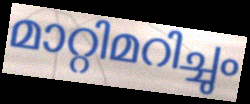
മാറ്റിമറിച്ചും